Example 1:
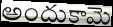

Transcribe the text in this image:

అందుకామె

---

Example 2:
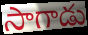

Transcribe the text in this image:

సాగాడు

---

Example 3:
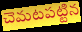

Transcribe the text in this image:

చెమటపట్టిన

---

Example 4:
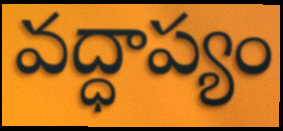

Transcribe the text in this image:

వద్ధాప్యం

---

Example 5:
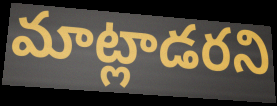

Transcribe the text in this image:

మాట్లాడరని